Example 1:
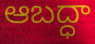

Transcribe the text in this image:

ఆబద్ధా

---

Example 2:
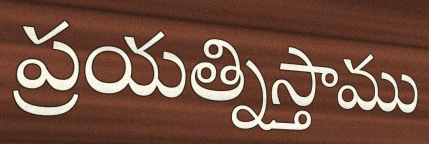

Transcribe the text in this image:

ప్రయత్నిస్తాము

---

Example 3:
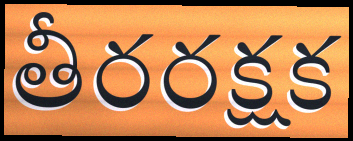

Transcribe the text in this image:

తీరరక్షక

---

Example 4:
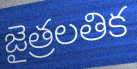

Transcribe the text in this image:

జైత్రలతిక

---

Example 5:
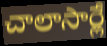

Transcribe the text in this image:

చాలాసార్లే